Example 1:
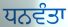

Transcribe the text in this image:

ਧਨਵੰਤਾ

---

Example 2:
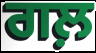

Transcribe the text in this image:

ਗਲ਼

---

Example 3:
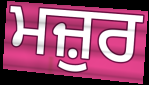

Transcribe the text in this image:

ਮਜ਼ੁਰ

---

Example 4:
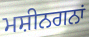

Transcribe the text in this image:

ਮਸ਼ੀਨਗਨਾਂ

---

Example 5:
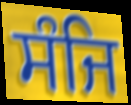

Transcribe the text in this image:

ਸੰਜਿ